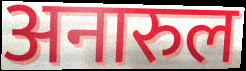
अनारुल